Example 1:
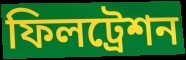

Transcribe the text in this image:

ফিলট্রেশন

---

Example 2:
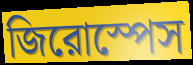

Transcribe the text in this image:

জিরোস্পেস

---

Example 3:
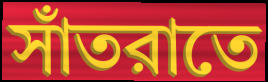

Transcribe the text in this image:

সাঁতরাতে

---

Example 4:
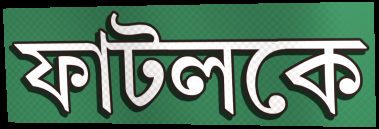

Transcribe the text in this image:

ফাটলকে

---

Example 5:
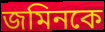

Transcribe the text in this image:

জমিনকে